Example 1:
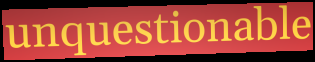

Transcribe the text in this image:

unquestionable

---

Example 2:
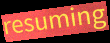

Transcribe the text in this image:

resuming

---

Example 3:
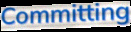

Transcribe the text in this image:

Committing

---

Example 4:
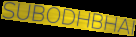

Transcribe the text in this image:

SUBODHBHAI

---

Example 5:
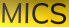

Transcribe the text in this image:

MICS